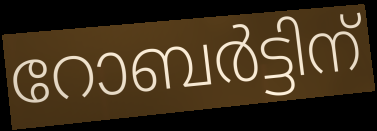
റോബർട്ടിന്